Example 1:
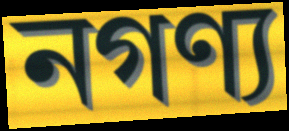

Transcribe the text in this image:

নগণ্য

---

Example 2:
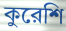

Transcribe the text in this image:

কুরেশি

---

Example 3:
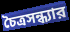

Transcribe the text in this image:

চৈত্রসন্ধ্যার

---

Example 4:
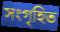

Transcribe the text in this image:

সংগৃহিত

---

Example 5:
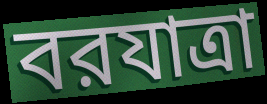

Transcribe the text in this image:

বরযাত্রা